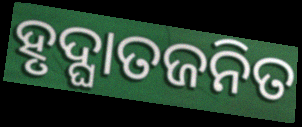
ହୃଦ୍ଘାତଜନିତ